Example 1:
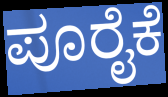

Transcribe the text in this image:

ಪೂರೈಕೆ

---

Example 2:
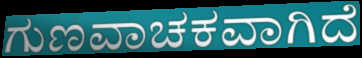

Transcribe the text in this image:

ಗುಣವಾಚಕವಾಗಿದೆ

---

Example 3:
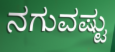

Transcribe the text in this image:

ನಗುವಷ್ಟು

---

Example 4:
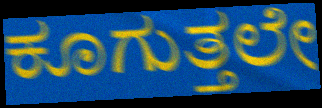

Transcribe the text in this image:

ಕೂಗುತ್ತಲೇ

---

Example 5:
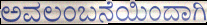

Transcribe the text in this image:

ಅವಲಂಬನೆಯಿಂದಾಗಿ